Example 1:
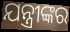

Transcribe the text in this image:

ଯନ୍ତ୍ରୀଙ୍କର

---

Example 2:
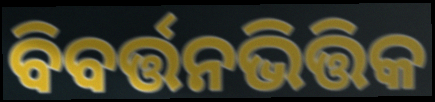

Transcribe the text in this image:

ବିବର୍ତ୍ତନଭିତ୍ତିକ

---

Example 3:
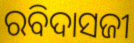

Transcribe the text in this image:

ରବିଦାସଜୀ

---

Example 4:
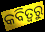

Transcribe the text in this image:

କବିତ୍ଵରୁ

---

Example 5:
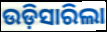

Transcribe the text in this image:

ଉଡ଼ିସାରିଲା